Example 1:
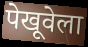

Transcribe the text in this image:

पेखूवेला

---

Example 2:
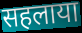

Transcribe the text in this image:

सहलाया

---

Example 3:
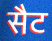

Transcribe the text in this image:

सैट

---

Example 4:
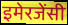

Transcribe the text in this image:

इमेरजेंसी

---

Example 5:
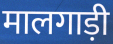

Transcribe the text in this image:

मालगाड़ी